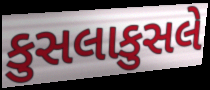
કુસલાકુસલે